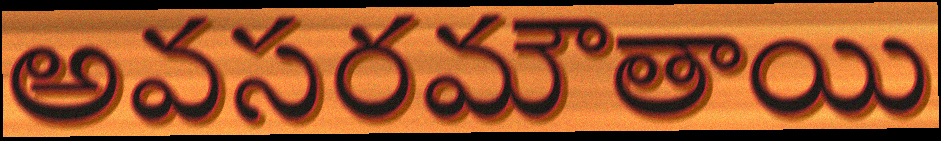
అవసరమౌతాయి